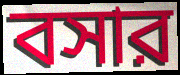
বসার